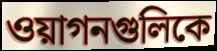
ওয়াগনগুলিকে